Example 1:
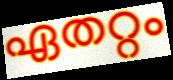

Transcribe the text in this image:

ഏതറ്റം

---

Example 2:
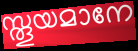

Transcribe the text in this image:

സ്തൂയമാനേ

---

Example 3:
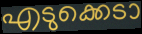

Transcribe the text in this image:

എടുക്കെടാ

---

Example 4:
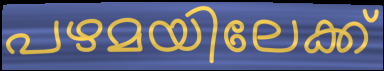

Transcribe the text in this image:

പഴമയിലേക്ക്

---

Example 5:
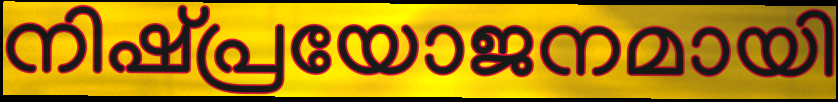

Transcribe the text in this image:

നിഷ്പ്രയോജനമായി